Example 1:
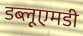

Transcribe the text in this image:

डब्लूएमडी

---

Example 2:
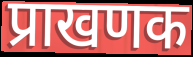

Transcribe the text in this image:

प्राखणक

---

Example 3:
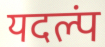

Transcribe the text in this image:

यदल्पं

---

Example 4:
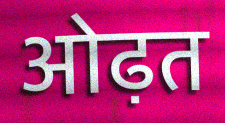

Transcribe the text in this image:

ओढ़त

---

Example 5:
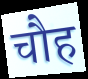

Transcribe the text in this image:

चौह